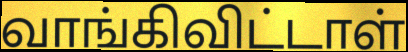
வாங்கிவிட்டாள்